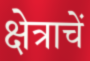
क्षेत्राचें